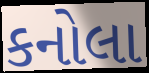
કનોલા